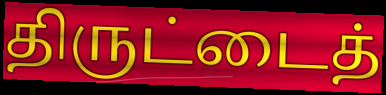
திருட்டைத்